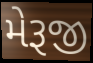
મેરૂજી